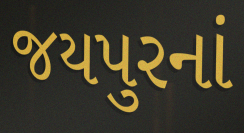
જયપુરનાં